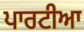
ਪਾਰਟੀਆ